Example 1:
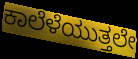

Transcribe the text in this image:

ಕಾಲೆಳೆಯುತ್ತಲೇ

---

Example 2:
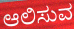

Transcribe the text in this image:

ಆಲಿಸುವ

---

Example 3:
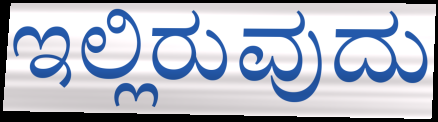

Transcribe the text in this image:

ಇಲ್ಲಿರುವುದು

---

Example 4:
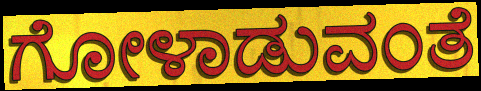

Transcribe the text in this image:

ಗೋಳಾಡುವಂತೆ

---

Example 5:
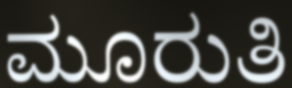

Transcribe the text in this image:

ಮೂರುತಿ